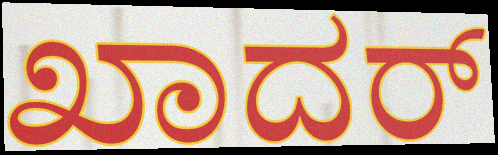
ಖಾದರ್